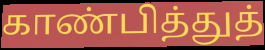
காண்பித்துத்